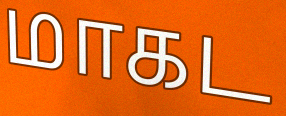
மாகட